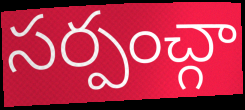
సర్పంచ్గా